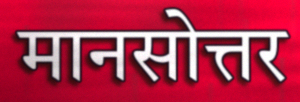
मानसोत्तर